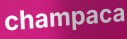
champaca